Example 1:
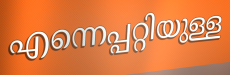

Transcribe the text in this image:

എന്നെപ്പറ്റിയുള്ള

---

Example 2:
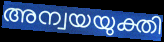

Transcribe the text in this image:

അന്വയയുക്തി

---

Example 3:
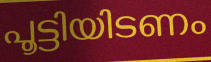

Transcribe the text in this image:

പൂട്ടിയിടണം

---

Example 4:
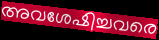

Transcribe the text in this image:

അവശേഷിച്ചവരെ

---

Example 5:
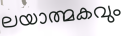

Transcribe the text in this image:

ലയാത്മകവും